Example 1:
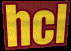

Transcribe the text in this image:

hcl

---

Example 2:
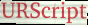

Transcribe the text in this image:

URScript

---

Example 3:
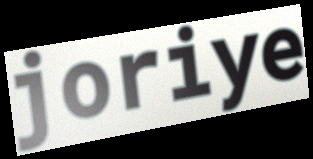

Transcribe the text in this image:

joriye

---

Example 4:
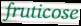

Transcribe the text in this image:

fruticose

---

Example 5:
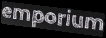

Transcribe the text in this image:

emporium